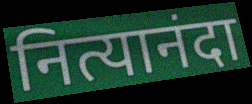
नित्यानंदा